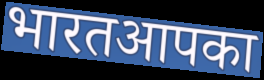
भारतआपका